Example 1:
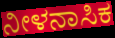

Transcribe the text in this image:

ನೀಳನಾಸಿಕ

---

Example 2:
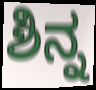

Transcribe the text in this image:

ಶಿನ್ನ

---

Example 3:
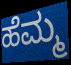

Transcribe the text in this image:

ಹೆಮ್ಮ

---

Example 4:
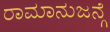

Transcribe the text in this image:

ರಾಮಾನುಜನ್ಗೆ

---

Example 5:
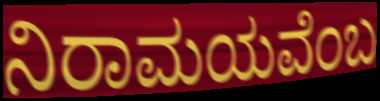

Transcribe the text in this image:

ನಿರಾಮಯವೆಂಬ